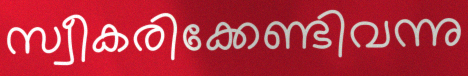
സ്വീകരിക്കേണ്ടിവന്നു